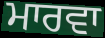
ਮਾਰਵਾ